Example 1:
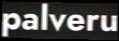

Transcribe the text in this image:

palveru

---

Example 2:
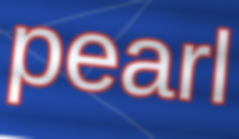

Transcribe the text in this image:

pearl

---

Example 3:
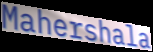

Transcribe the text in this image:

Mahershala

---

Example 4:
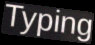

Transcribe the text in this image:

Typing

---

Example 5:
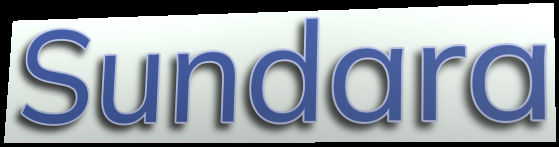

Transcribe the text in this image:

Sundara